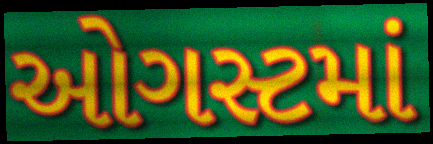
ઓગસ્ટમાં